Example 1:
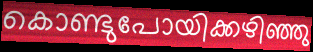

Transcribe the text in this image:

കൊണ്ടുപോയിക്കഴിഞ്ഞു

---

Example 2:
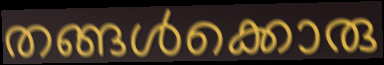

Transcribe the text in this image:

തങ്ങൾക്കൊരു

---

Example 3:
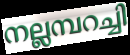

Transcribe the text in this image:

നല്ലമ്പറച്ചി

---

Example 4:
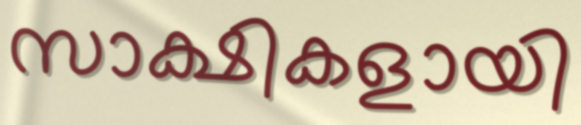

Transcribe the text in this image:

സാക്ഷികളായി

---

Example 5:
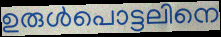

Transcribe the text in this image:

ഉരുൾപൊട്ടലിനെ